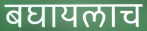
बघायलाच